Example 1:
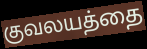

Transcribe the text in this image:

குவலயத்தை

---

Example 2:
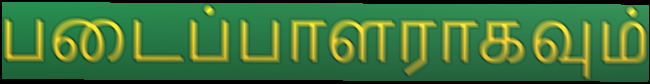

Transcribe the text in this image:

படைப்பாளராகவும்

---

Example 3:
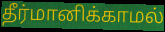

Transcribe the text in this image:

தீர்மானிக்காமல்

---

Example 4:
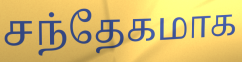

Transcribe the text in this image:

சந்தேகமாக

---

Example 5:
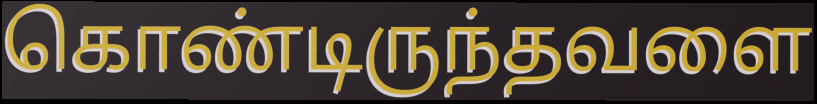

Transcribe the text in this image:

கொண்டிருந்தவளை